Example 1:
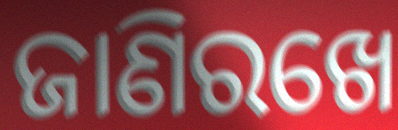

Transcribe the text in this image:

ଜାଣିରଖେ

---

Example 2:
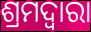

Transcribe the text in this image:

ଶ୍ରମଦ୍ଵାରା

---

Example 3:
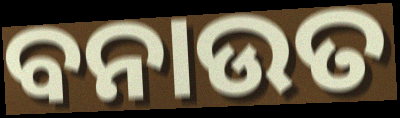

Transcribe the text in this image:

ବନାଉତ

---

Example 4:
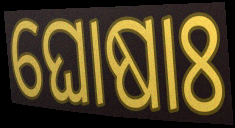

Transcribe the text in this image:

ଘୋଷାଃ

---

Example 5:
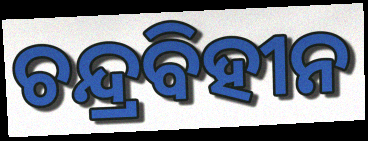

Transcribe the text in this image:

ଚନ୍ଦ୍ରବିହୀନ